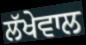
ਲੱਖੇਵਾਲ